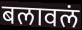
बलावलं